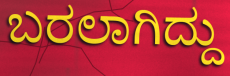
ಬರಲಾಗಿದ್ದು